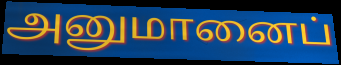
அனுமானைப்